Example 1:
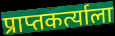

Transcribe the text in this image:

प्राप्तकर्त्याला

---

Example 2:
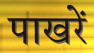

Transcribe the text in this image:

पाखरें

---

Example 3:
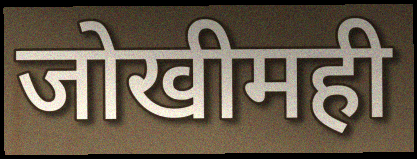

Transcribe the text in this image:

जोखीमही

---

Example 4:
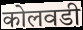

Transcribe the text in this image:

कोलवडी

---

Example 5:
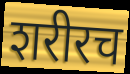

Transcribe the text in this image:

शरीरच